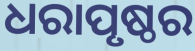
ଧରାପୃଷ୍ଠର